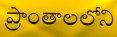
ప్రాంతాలలోని